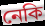
নেকি